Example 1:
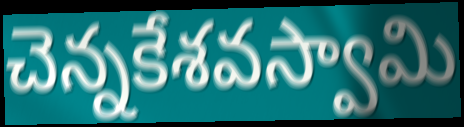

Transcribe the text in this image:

చెన్నకేశవస్వామి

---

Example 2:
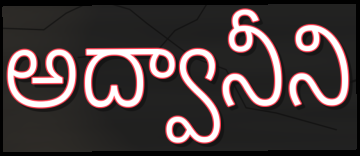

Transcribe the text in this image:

అద్వానీని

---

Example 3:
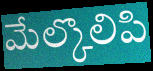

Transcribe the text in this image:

మేల్కొలిపి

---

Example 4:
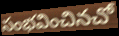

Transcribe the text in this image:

సంభవించినచో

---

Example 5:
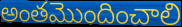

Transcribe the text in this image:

అంతమొందించాలి